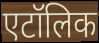
एटॉलिक